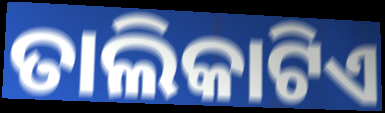
ତାଲିକାଟିଏ